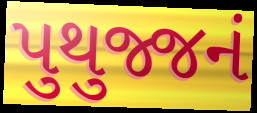
પુથુજ્જનં